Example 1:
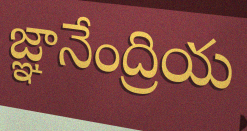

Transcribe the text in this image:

జ్ఞానేంద్రియ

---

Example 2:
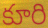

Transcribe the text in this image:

కూరి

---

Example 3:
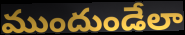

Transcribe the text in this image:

ముందుండేలా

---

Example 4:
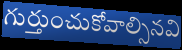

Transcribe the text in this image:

గుర్తుంచుకోవాల్సినవి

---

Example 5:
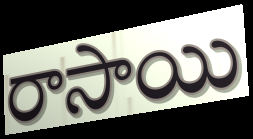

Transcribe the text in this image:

రాసాయి